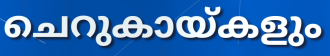
ചെറുകായ്കളും